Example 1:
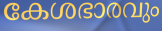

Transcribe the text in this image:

കേശഭാരവും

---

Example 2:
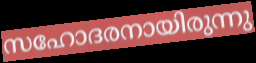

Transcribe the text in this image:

സഹോദരനായിരുന്നു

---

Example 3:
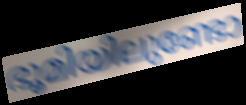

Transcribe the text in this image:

ഭൂമിയിലുണ്ടോ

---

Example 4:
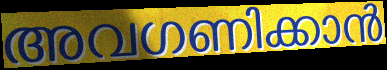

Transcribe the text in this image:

അവഗണിക്കാൻ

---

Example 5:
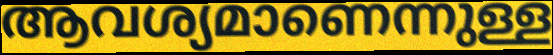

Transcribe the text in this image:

ആവശ്യമാണെന്നുള്ള